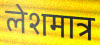
लेशमात्र